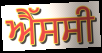
ਐੱਸਸੀ